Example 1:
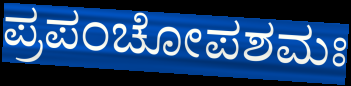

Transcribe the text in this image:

ಪ್ರಪಂಚೋಪಶಮಃ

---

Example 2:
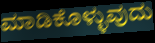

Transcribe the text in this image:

ಮಾಡಿಕೊಳ್ಳುವುದು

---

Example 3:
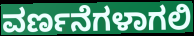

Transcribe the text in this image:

ವರ್ಣನೆಗಳಾಗಲಿ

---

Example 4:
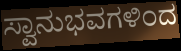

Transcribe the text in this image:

ಸ್ವಾನುಭವಗಳಿಂದ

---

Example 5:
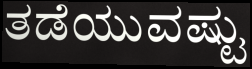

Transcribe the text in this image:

ತಡೆಯುವಷ್ಟು